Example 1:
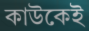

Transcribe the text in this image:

কাউকেই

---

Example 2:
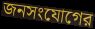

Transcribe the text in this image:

জনসংযোগের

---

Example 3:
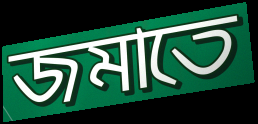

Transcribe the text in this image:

জমাতে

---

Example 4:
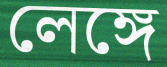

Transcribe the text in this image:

লেঙ্গে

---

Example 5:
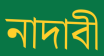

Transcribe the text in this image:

নাদাবী